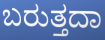
ಬರುತ್ತದಾ